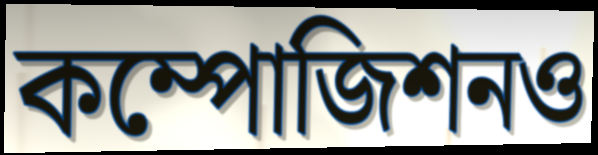
কম্পোজিশনও